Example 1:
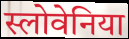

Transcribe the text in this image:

स्लोवेनिया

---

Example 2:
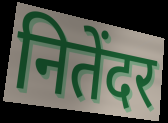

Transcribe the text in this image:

नितेंदर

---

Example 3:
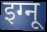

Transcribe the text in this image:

इग्नू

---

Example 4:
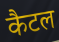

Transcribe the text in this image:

कैटल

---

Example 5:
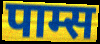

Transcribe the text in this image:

पाम्स